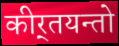
कीर्तयन्तो